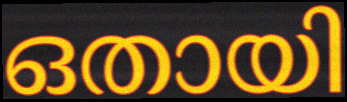
ഒതായി